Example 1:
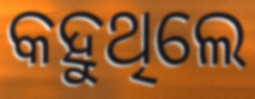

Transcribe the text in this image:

କହୁଥିଲେ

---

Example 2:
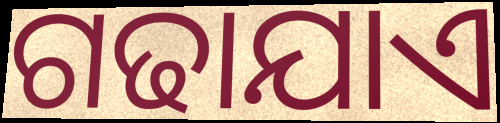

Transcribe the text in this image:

ଗଢାଯାଏ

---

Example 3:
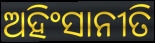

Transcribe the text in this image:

ଅହିଂସାନୀତି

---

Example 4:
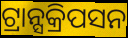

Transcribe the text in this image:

ଟ୍ରାନ୍ସକ୍ରିପସନ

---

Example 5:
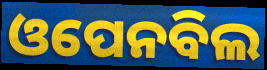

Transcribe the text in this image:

ଓପେନବିଲ